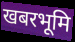
खबरभूमि